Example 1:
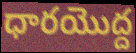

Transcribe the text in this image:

ధారయొద్ద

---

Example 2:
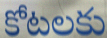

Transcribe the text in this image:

కోటలకు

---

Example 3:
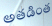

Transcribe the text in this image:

అతడింత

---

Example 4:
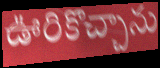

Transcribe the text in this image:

ఊరికొచ్చాను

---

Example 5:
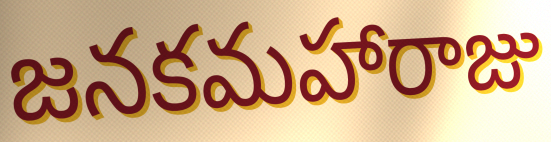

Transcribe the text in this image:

జనకమహారాజు